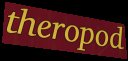
theropod